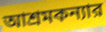
আশ্রমকন্যার